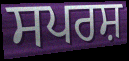
ਸਪਰਸ਼